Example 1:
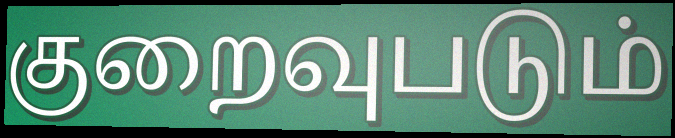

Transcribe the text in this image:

குறைவுபடும்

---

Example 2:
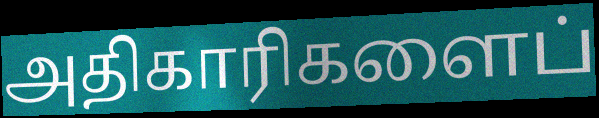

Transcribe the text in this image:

அதிகாரிகளைப்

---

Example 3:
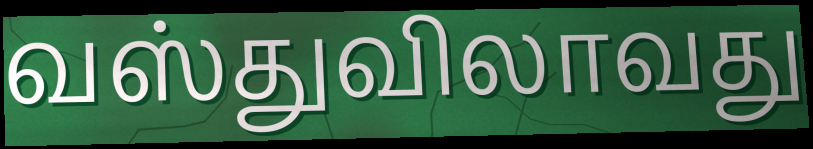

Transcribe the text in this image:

வஸ்துவிலாவது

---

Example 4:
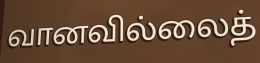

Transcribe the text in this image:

வானவில்லைத்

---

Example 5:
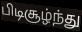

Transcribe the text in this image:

பிடிசூழ்ந்து